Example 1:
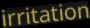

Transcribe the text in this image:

irritation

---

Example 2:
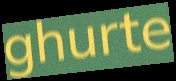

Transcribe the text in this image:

ghurte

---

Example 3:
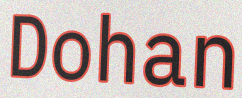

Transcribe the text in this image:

Dohan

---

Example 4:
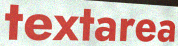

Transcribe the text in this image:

textarea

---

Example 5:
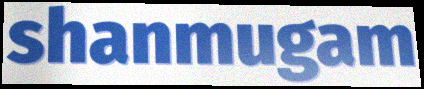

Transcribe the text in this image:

shanmugam